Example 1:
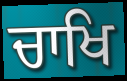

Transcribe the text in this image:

ਚਾਖਿ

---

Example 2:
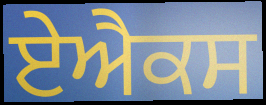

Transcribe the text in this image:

ਏਐਕਸ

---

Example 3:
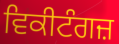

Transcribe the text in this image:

ਵਿਕੀਟੰਗਜ਼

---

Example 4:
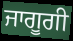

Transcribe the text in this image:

ਜਾਗੂਗੀ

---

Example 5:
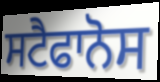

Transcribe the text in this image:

ਸਟੈਫਾਨੋਸ